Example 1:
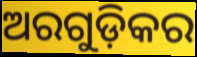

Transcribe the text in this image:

ଅରଗୁଡ଼ିକର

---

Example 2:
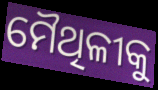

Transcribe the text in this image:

ମୈଥିଳୀକୁ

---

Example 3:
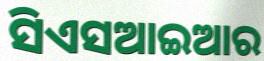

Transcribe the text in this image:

ସିଏସଆଇଆର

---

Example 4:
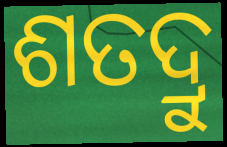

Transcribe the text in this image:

ଶତଦ୍ରୁ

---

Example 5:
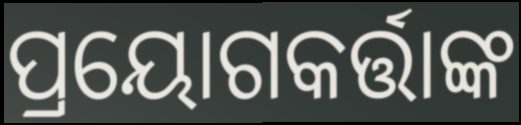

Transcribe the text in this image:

ପ୍ରୟୋଗକର୍ତ୍ତାଙ୍କ